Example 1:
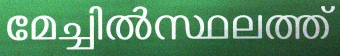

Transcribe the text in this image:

മേച്ചിൽസ്ഥലത്ത്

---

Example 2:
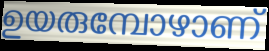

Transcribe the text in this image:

ഉയരുമ്പോഴാണ്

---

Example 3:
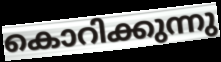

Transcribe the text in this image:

കൊറിക്കുന്നു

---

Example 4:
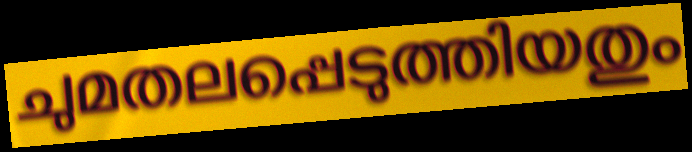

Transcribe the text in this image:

ചുമതലപ്പെടുത്തിയതും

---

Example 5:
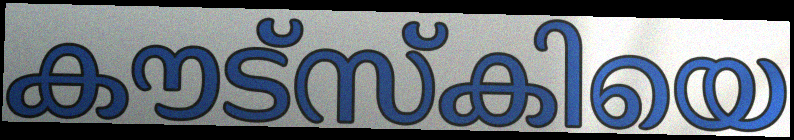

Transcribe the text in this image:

കൗട്സ്കിയെ